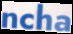
ncha